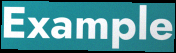
Example